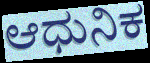
ಆಧುನಿಕ